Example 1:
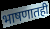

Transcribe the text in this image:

भाषणातही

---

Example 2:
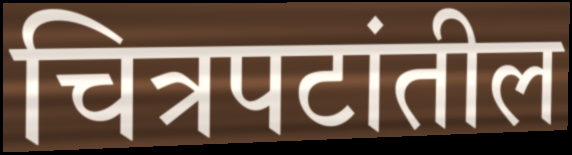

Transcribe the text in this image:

चित्रपटांतील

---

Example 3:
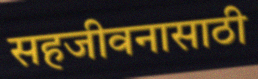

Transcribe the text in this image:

सहजीवनासाठी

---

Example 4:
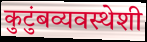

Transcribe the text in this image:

कुटुंबव्यवस्थेशी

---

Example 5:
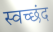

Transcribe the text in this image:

स्वच्छंद